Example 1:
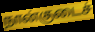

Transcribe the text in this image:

நான்குடைச்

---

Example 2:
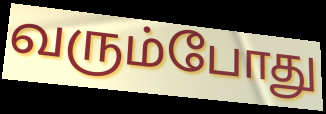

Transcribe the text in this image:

வரும்போது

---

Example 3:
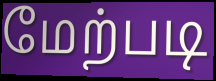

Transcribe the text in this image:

மேற்படி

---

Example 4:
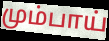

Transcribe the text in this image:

மும்பாய்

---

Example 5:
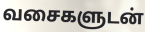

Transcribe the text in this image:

வசைகளுடன்